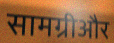
सामग्रीऔर